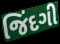
જિંદગી